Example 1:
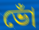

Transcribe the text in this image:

ভোঁ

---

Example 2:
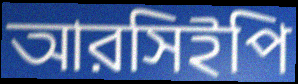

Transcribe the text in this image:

আরসিইপি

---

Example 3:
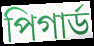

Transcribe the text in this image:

পিগার্ড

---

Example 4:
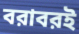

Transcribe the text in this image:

বরাবরই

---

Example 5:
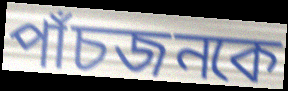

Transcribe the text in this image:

পাঁচজনকে